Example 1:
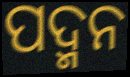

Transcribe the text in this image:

ପଦ୍ମନ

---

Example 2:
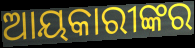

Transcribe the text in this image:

ଆୟକାରୀଙ୍କର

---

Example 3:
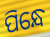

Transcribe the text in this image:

ପିନ୍ଧେ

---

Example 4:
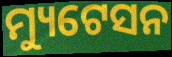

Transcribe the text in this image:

ମ୍ୟୁଟେସନ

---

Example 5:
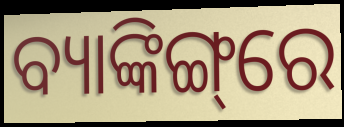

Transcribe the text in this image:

ବ୍ୟାଙ୍କିଙ୍ଗ୍‌ରେ